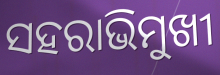
ସହରାଭିମୁଖୀ